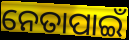
ନେତାପାଇଁ